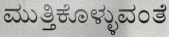
ಮುತ್ತಿಕೊಳ್ಳುವಂತೆ